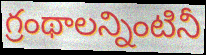
గ్రంథాలన్నింటినీ